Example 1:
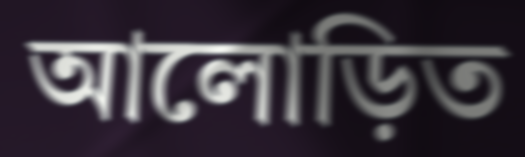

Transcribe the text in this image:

আলোড়িত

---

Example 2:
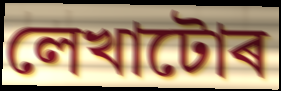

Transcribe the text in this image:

লেখাটোৰ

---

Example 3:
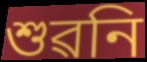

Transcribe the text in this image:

শুৱনি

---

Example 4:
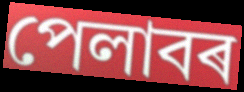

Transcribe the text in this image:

পেলাবৰ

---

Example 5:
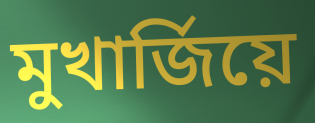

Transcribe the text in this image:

মুখাৰ্জিয়ে